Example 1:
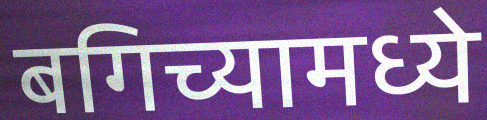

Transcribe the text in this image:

बगिच्यामध्ये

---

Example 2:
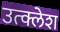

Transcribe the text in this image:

उत्क्लेश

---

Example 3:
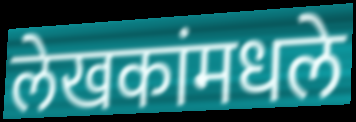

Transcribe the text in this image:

लेखकांमधले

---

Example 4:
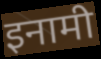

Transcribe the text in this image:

इनामी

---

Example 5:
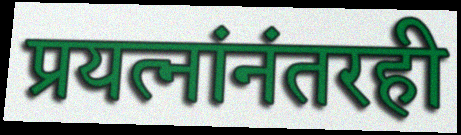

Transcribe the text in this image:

प्रयत्नांनंतरही